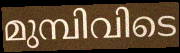
മുമ്പിവിടെ